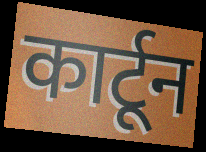
कार्टून